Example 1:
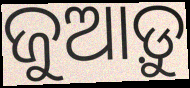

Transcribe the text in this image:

ଜୁଆଡ଼ୁ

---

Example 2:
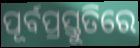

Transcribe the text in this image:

ପୂର୍ବପ୍ରସ୍ତୁତିରେ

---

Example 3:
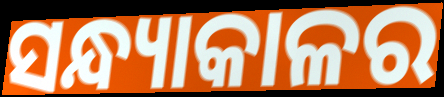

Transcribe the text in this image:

ସନ୍ଧ୍ୟାକାଳର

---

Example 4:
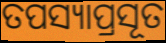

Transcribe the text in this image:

ତପସ୍ୟାପ୍ରସୂତ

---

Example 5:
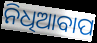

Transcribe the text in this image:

ନିଧିଆବାପ